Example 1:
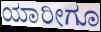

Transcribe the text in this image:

ಯಾರೀಗೂ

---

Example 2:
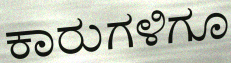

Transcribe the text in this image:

ಕಾರುಗಳಿಗೂ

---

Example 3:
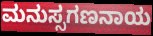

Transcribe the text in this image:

ಮನುಸ್ಸಗಣನಾಯ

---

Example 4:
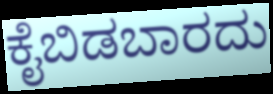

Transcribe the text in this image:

ಕೈಬಿಡಬಾರದು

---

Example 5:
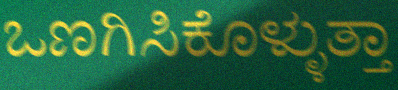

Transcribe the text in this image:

ಒಣಗಿಸಿಕೊಳ್ಳುತ್ತಾ